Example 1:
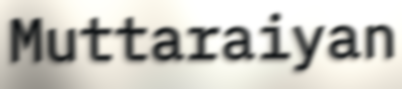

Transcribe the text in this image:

Muttaraiyan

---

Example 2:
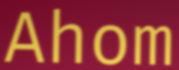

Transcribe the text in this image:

Ahom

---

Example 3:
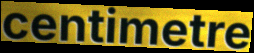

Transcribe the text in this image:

centimetre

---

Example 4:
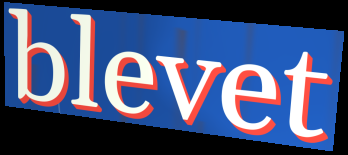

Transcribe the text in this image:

blevet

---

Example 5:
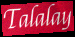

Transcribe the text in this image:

Talalay